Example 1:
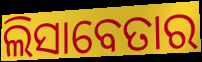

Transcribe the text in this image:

ଲିସାବେତାର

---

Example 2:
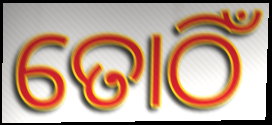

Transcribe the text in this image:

ତୋଠିଁ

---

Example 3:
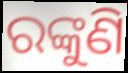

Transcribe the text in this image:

ରଙ୍କୁଣି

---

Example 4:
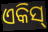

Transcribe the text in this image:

ଏକିସ୍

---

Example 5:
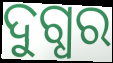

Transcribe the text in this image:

ଦୁଗ୍ଧର